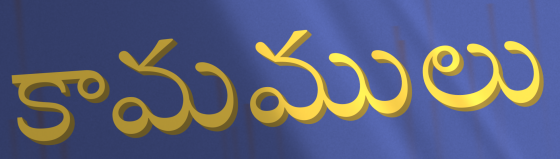
కామములు